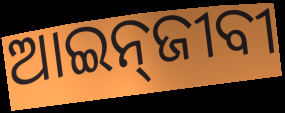
ଆଇନ୍‌ଜୀବୀ